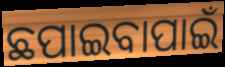
ଛପାଇବାପାଇଁ